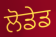
ਲੋਡੇਡ